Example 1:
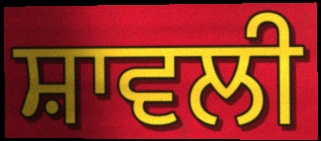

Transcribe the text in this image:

ਸ਼ਾਵਲੀ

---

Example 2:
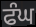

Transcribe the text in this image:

ਫੰਘ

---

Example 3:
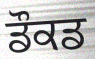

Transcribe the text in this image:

ਡੌਕਡ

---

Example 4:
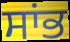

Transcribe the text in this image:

ਸਾਂਭ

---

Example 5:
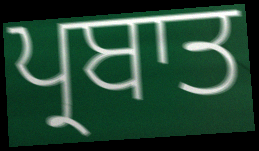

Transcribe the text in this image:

ਪ੍ਰਬਾਤ